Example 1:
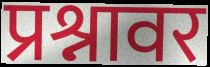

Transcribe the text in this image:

प्रश्नावर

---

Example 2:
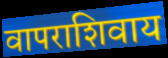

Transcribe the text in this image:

वापराशिवाय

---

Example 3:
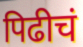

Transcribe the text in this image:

पिढीचं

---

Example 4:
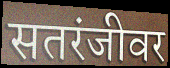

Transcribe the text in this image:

सतरंजीवर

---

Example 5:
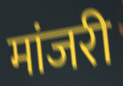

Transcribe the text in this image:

मांजरी